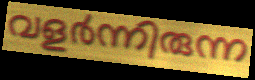
വളർന്നിരുന്ന